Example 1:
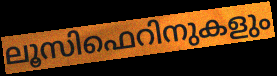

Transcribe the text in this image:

ലൂസിഫെറിനുകളും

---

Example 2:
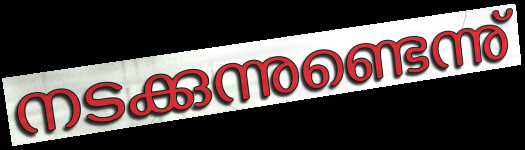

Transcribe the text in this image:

നടക്കുന്നുണ്ടെന്നു്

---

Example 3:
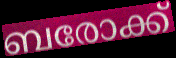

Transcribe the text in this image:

ബരോക്ക്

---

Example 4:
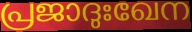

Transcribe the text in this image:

പ്രജാദുഃഖേന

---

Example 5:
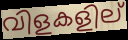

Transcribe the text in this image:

വിളകളില്